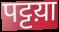
पट्टय़ा